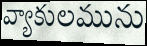
వ్యాకులమును